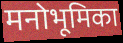
मनोभूमिका